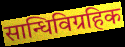
सान्धिविग्रहिक